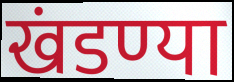
खंडण्या